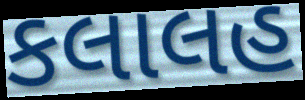
કલાલહ